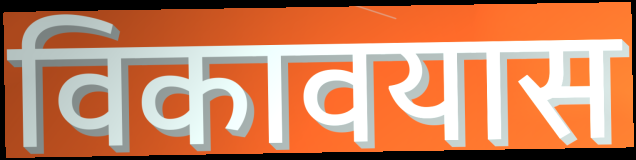
विकावयास